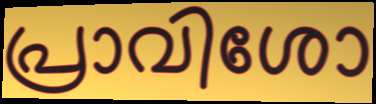
പ്രാവിശോ